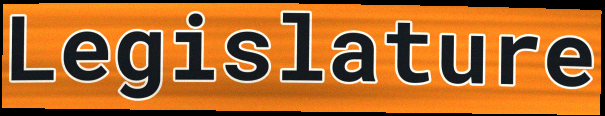
Legislature